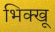
भिक्खू